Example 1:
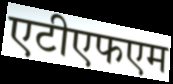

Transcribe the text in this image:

एटीएफएम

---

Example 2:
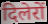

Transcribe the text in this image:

दिलेरों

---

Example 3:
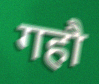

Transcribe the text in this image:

गहौ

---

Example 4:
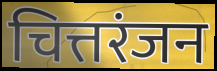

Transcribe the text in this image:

चित्तरंजन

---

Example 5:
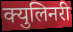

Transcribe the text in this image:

क्युलिनरी